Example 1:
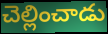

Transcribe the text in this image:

చెల్లించాడు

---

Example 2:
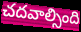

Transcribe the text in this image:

చదవాల్సింది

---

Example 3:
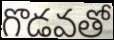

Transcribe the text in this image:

గొడవతో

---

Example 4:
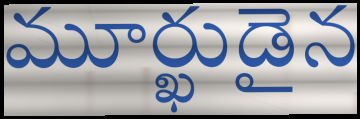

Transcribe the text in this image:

మూర్ఖుడైన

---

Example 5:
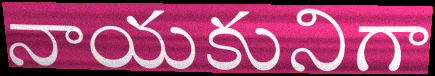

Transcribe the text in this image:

నాయకునిగా